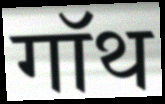
गॉथ